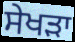
ਸੇਖੜਾ